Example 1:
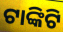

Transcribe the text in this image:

ଟାଙ୍କିଟି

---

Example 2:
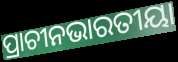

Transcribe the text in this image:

ପ୍ରାଚୀନଭାରତୀୟା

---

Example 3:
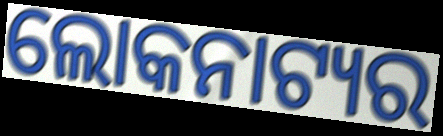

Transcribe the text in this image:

ଲୋକନାଟ୍ୟର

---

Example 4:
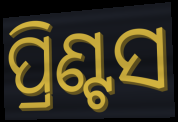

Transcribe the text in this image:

ପ୍ରିଣ୍ଟସ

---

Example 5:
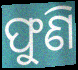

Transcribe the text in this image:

ଫୁଣି